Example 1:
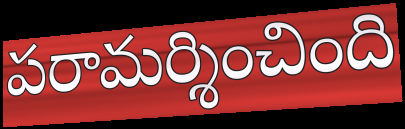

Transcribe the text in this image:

పరామర్శించింది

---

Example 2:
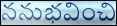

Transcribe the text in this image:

ననుభవించి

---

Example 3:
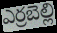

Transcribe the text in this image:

ఎర్రబెల్లి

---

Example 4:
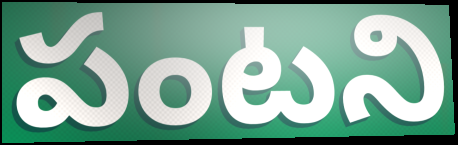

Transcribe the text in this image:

పంటని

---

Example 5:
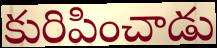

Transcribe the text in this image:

కురిపించాడు